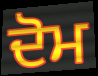
ਦੋਮ